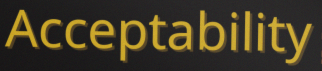
Acceptability